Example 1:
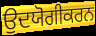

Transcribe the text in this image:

ਉਦਯੋਗੀਕਰਨ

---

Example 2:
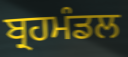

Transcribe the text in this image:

ਬ੍ਰਹਮੰਡਲ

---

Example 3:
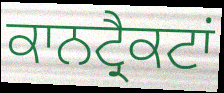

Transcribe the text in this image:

ਕਾਨਟ੍ਰੈਕਟਾਂ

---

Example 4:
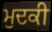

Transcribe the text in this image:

ਮੁਦਕੀ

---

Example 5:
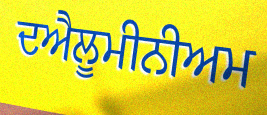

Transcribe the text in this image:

ਦਐਲੂਮੀਨੀਅਮ